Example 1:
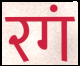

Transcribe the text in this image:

रगं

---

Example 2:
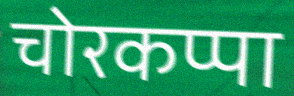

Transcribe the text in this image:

चोरकप्पा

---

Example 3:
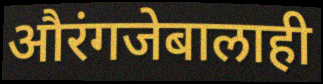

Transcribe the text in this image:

औरंगजेबालाही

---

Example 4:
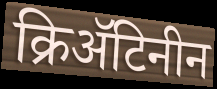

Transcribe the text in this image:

क्रिॲटिनीन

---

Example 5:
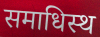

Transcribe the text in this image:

समाधिस्थ